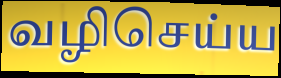
வழிசெய்ய